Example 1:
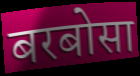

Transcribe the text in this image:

बरबोसा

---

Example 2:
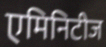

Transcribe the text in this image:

एमिनिटीज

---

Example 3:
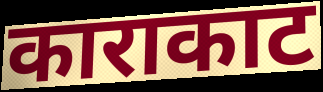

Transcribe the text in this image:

काराकाट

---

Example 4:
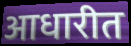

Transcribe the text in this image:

आधारीत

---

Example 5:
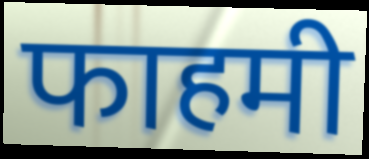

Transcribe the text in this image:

फाहमी